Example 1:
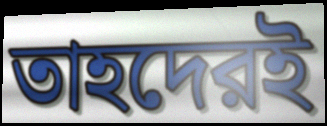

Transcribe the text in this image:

তাহদেরই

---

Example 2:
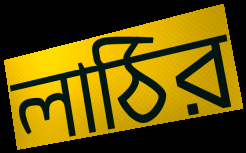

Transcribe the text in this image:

লাঠির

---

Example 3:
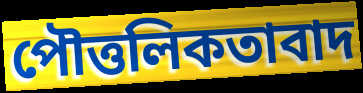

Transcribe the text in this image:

পৌত্তলিকতাবাদ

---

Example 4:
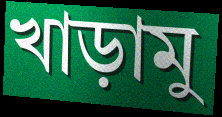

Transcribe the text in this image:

খাড়ামু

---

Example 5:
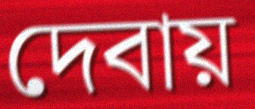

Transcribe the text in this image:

দেবায়